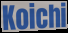
Koichi